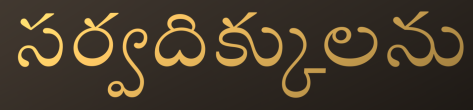
సర్వదిక్కులను